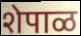
शेपाळ